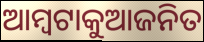
ଆମ୍ବଟାକୁଆଜନିତ